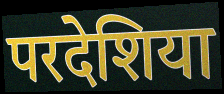
परदेशिया